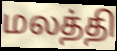
மலத்தி